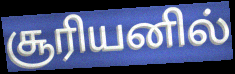
சூரியனில்